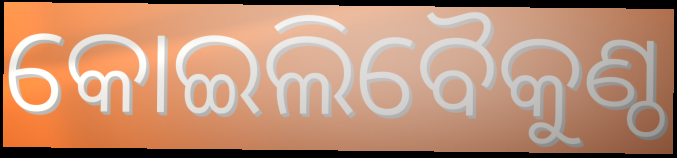
କୋଇଲିବୈକୁଣ୍ଠ